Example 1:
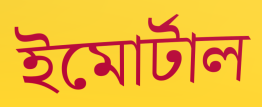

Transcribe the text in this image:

ইমোর্টাল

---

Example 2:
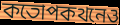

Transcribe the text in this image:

কতোপকথনেও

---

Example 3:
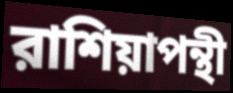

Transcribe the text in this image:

রাশিয়াপন্থী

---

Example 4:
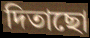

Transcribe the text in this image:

দিতাছো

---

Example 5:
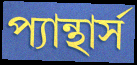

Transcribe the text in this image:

প্যান্থার্স